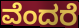
ವೆಂದರೆ